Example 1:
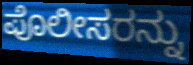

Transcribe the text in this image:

ಪೊಲೀಸರನ್ನು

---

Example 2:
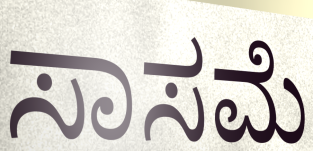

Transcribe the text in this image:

ಸಾಸಮೆ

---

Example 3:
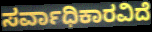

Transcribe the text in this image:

ಸರ್ವಾಧಿಕಾರವಿದೆ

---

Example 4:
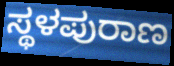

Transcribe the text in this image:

ಸ್ಥಳಪುರಾಣ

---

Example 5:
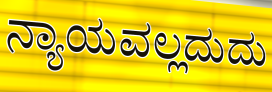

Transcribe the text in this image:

ನ್ಯಾಯವಲ್ಲದುದು